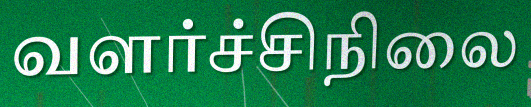
வளர்ச்சிநிலை